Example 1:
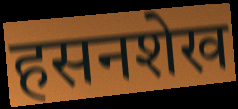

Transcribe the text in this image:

हसनशेख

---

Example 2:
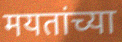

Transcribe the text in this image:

मयतांच्या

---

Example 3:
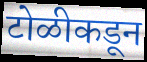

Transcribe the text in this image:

टोळीकडून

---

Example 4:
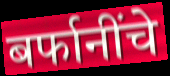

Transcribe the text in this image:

बर्फानींचे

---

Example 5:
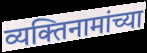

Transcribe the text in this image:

व्यक्तिनामांच्या